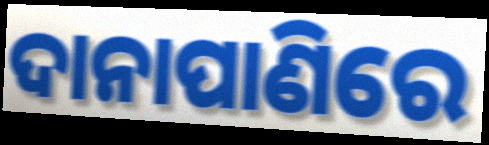
ଦାନାପାଣିରେ